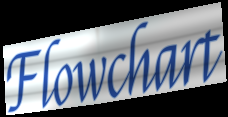
Flowchart